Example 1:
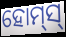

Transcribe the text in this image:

ହୋମ୍‌ସ୍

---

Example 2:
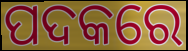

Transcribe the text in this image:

ପଦକରେ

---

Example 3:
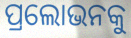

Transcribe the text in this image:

ପ୍ରଲୋଭନକୁ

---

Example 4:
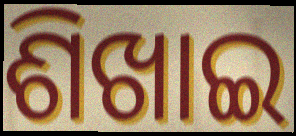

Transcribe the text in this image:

ଶିଖାଇ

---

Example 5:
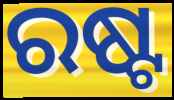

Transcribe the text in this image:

ରଷ୍ଟ